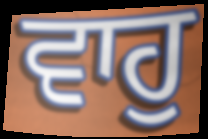
ਵਾਹੁ